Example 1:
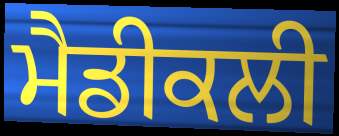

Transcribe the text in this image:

ਮੈਡੀਕਲੀ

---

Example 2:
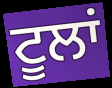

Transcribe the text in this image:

ਟੂਲਾਂ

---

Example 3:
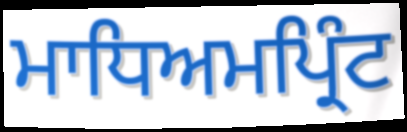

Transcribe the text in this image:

ਮਾਧਿਅਮਪ੍ਰਿੰਟ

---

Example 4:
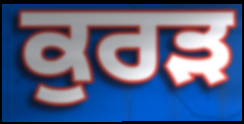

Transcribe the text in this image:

ਕੁਰੜ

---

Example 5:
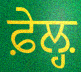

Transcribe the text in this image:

ਫ਼ੇਲ਼੍ਹ